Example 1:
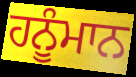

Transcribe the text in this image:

ਹਨੂੰਮਾਨ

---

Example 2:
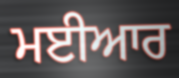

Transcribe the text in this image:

ਮਈਆਰ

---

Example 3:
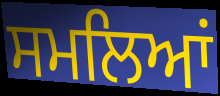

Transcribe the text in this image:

ਸਮਲਿਆਂ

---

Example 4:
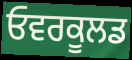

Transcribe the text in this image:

ਓਵਰਕੂਲਡ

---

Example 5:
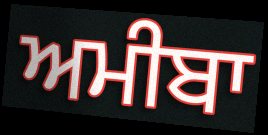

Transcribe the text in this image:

ਅਮੀਬਾ